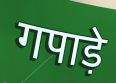
गपाड़े